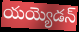
యయ్యెడన్